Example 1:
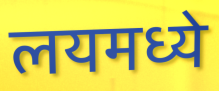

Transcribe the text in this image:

लयमध्ये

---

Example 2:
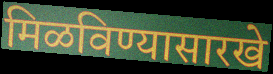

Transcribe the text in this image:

मिळविण्यासारखे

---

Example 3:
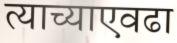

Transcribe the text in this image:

त्याच्याएवढा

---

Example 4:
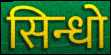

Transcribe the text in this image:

सिन्धो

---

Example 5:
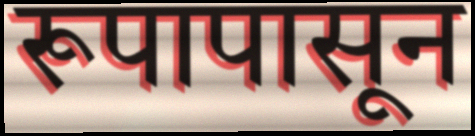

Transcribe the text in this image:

रूपापासून